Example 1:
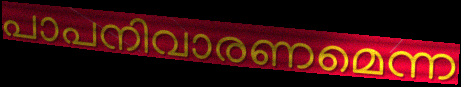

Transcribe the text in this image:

പാപനിവാരണമെന്ന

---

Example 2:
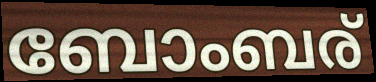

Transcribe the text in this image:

ബോംബര്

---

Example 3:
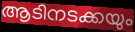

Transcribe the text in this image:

ആടിനടക്കയും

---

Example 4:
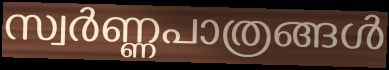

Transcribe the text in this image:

സ്വർണ്ണപാത്രങ്ങൾ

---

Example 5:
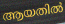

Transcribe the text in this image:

ആയതിൽ